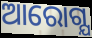
ଆରୋଗ୍ଯ